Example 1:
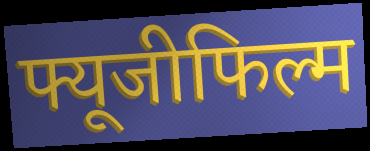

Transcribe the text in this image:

फ्यूजीफिल्म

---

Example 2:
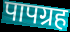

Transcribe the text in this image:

पापग्रह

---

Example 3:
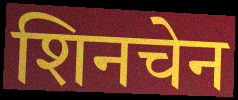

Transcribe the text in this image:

शिनचेन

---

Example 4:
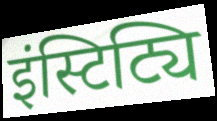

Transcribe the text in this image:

इंस्टिट्यि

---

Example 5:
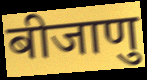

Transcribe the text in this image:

बीजाणु